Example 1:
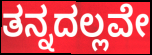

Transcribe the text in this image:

ತನ್ನದಲ್ಲವೇ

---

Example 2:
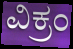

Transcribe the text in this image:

ವಿಕ್ರಂ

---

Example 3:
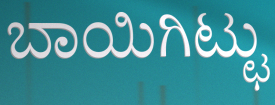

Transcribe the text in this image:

ಬಾಯಿಗಿಟ್ಟು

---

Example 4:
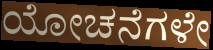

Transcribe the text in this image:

ಯೋಚನೆಗಳೇ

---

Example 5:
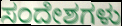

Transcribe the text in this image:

ಸಂದೇಶಗಳು